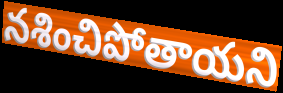
నశించిపోతాయని